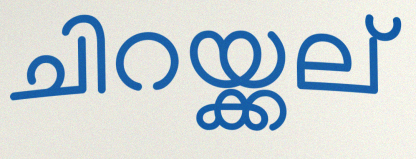
ചിറയ്ക്കല്